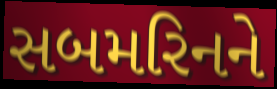
સબમરિનને